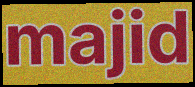
majid